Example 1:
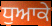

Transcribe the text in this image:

ਧੁਆਕੇ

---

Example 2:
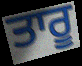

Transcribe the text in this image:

ਤਾਰੂ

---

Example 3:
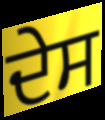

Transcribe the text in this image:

ਦੇਸ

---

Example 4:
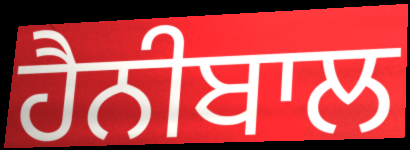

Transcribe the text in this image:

ਹੈਨੀਬਾਲ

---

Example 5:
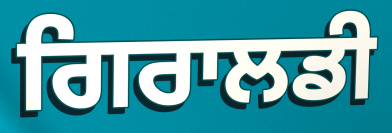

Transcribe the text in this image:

ਗਿਰਾਲਡੀ